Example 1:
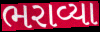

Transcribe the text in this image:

ભરાવ્યા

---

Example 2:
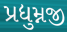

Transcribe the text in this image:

પ્રદ્યુમ્નજી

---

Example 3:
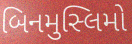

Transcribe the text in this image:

બિનમુસ્લિમો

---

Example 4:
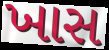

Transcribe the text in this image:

ખાસ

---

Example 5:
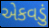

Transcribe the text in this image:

એકવડું